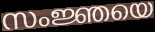
സംജ്ഞയെ